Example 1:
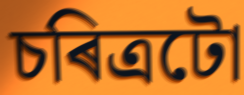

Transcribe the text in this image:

চৰিত্ৰটো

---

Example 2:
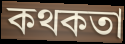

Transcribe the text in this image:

কথকতা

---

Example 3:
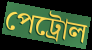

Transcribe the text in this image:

পেট্ৰোল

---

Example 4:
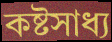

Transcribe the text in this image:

কষ্টসাধ্য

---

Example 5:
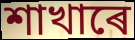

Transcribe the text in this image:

শাখাৰে